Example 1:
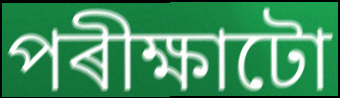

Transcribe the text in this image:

পৰীক্ষাটো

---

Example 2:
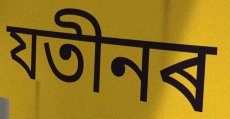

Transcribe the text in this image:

যতীনৰ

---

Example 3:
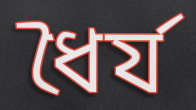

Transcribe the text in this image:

ধৈৰ্য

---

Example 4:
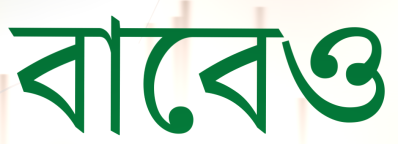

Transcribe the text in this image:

বাবেও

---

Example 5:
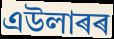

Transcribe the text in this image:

এউলাৰৰ